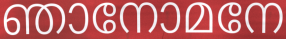
ഞാനോമനേ